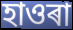
হাওৰা